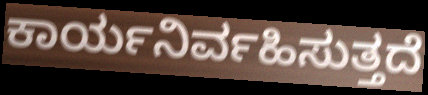
ಕಾರ್ಯನಿರ್ವಹಿಸುತ್ತದೆ